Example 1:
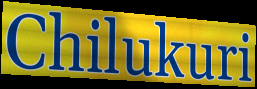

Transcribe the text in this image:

Chilukuri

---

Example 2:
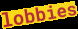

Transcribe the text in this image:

lobbies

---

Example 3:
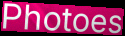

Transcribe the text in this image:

Photoes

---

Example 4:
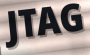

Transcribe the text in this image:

JTAG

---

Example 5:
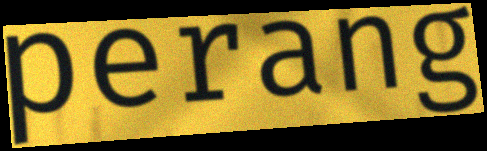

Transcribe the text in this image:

perang